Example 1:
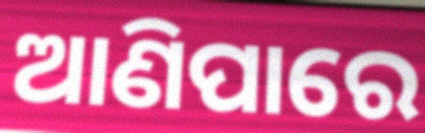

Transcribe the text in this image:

ଆଣିପାରେ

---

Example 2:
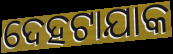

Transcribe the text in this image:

ଦେହଟାଯାକ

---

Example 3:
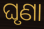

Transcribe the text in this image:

ଘୃଣା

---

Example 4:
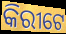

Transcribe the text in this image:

କିରୀଟେ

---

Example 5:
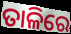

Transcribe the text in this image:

ତାଳିରେ